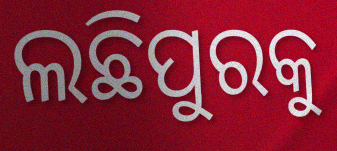
ଲଛିପୁରକୁ